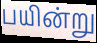
பயின்று